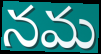
నమ